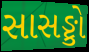
સાસઙ્કો